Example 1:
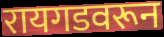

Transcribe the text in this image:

रायगडवरून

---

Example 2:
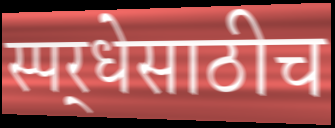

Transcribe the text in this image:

स्पर्धेसाठीच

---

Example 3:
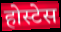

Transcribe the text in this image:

होस्टेस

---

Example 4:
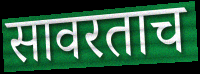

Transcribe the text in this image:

सावरताच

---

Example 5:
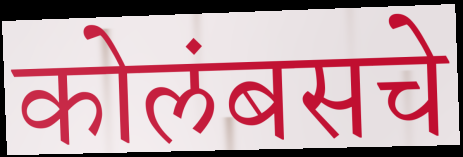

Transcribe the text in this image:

कोलंबसचे